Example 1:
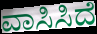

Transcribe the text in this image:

ವಾಸಿಸಿದೆ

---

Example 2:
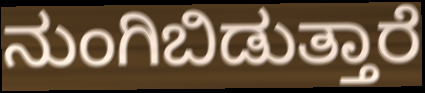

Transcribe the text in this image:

ನುಂಗಿಬಿಡುತ್ತಾರೆ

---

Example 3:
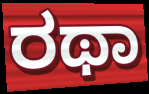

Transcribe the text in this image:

ರಥಾ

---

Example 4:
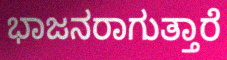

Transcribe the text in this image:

ಭಾಜನರಾಗುತ್ತಾರೆ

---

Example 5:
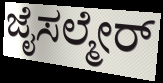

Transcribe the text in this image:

ಜೈಸಲ್ಮೇರ್